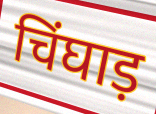
चिंघाड़